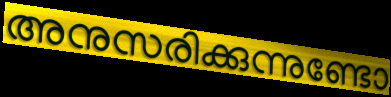
അനുസരിക്കുന്നുണ്ടോ